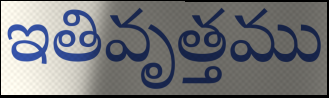
ఇతివృత్తము